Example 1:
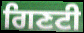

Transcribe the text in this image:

ਗਿਣਟੀ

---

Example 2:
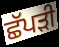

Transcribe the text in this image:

ਛੱਪੜੀ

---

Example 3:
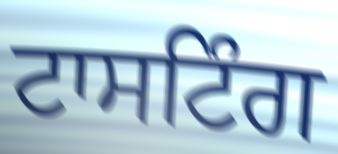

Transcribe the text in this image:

ਟਾਸਟਿੰਗ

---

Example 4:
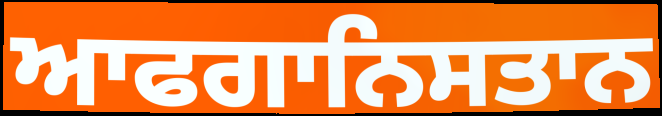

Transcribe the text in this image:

ਆਫਗਾਨਿਸਤਾਨ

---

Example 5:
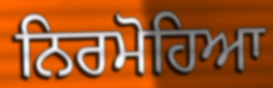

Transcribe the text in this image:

ਨਿਰਮੋਹਿਆ